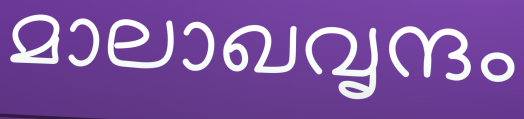
മാലാഖവൃന്ദം